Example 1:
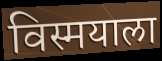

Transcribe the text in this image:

विस्मयाला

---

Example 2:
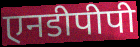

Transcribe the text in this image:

एनडीपीपी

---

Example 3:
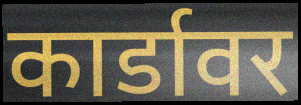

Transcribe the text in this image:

कार्डावर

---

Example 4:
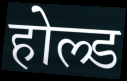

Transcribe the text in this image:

होल्ड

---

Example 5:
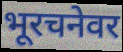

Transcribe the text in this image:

भूरचनेवर